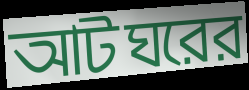
আটঘরের